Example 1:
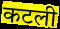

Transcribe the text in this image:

कटली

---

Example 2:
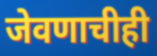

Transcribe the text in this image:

जेवणाचीही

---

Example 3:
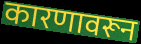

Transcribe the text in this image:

कारणावरून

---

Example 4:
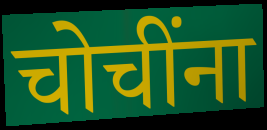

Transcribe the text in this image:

चोचींना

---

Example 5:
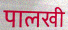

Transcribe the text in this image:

पालखी